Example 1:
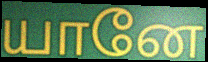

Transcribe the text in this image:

யானே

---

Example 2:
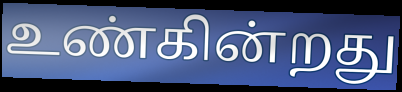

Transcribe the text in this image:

உண்கின்றது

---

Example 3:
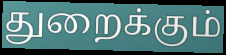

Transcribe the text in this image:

துறைக்கும்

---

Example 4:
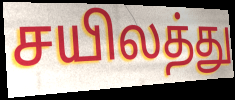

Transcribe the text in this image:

சயிலத்து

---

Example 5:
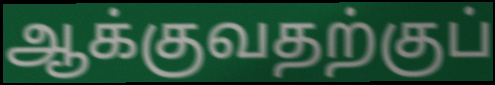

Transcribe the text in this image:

ஆக்குவதற்குப்